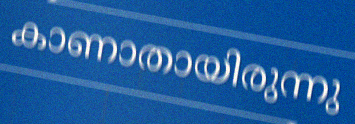
കാണാതായിരുന്നു